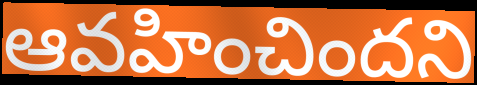
ఆవహించిందని